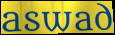
aswad